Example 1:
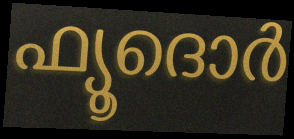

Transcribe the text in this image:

ഫ്യൂദൊർ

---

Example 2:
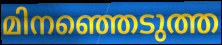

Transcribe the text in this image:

മിനഞ്ഞെടുത്ത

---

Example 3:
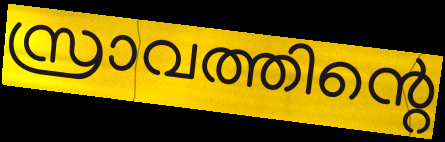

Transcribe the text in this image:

സ്രാവത്തിന്റെ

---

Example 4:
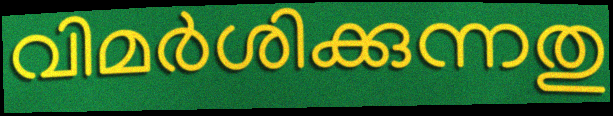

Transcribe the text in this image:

വിമർശിക്കുന്നതു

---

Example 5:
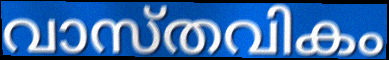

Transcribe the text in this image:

വാസ്തവികം